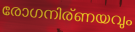
രോഗനിര്ണയവും